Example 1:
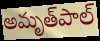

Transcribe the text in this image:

అమృత్‌పాల్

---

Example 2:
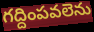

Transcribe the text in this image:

గద్దింపవలెను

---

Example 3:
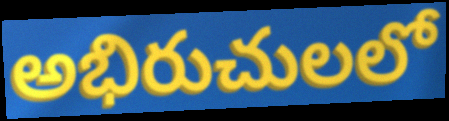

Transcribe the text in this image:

అభిరుచులలో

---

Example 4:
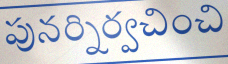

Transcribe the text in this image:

పునర్నిర్వచించి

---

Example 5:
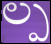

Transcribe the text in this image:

ల్ప